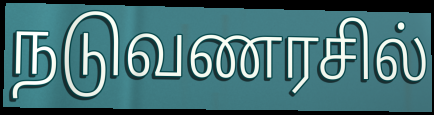
நடுவணரசில்